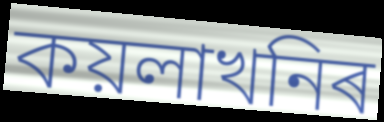
কয়লাখনিৰ